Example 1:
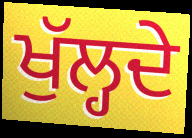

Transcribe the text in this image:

ਖੁੱਲ੍ਹਦੇ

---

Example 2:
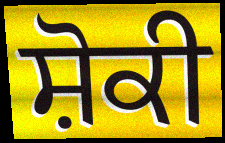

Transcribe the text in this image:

ਸ਼ੋਕੀ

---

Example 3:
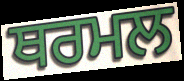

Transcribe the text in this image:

ਥਰਮਲ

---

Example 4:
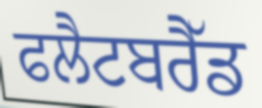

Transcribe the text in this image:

ਫਲੈਟਬਰੈੱਡ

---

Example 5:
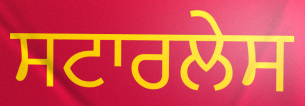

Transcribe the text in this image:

ਸਟਾਰਲੇਸ